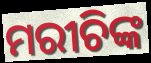
ମରୀଚିଙ୍କ